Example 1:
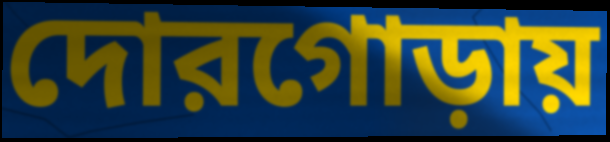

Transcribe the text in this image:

দোরগোড়ায়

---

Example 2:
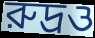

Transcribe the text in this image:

রুদ্রও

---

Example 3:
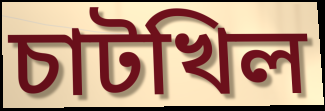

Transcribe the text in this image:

চাটখিল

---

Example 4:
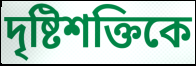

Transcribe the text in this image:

দৃষ্টিশক্তিকে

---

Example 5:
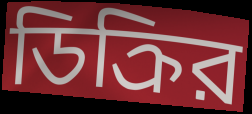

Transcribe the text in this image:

ডিক্রির